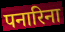
पनारिना